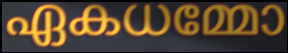
ഏകധമ്മോ